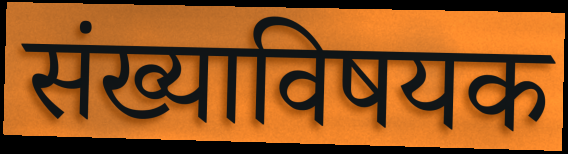
संख्याविषयक